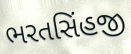
ભરતસિંહજી